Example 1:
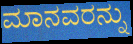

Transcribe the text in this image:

ಮಾನವರನ್ನು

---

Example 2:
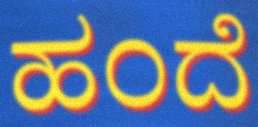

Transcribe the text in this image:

ಹಂದೆ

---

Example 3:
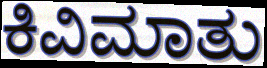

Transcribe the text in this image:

ಕಿವಿಮಾತು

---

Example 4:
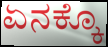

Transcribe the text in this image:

ಏನಕ್ಕೊ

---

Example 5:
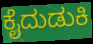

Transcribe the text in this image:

ಕೈದುಡುಕಿ